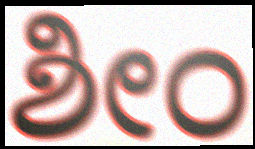
ಶೀಂ